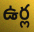
ఉర్ల